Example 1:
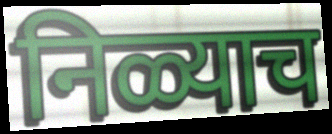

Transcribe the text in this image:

निळ्याच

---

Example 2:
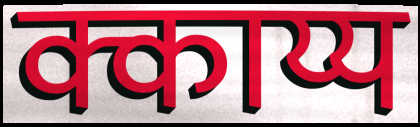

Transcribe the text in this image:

क्काय्य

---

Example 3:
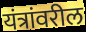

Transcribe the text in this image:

यंत्रांवरील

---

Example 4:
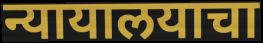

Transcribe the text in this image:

न्यायालयाचा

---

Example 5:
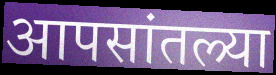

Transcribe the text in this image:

आपसांतल्या